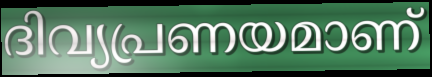
ദിവ്യപ്രണയമാണ്